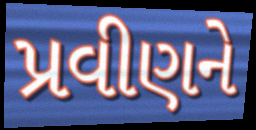
પ્રવીણને